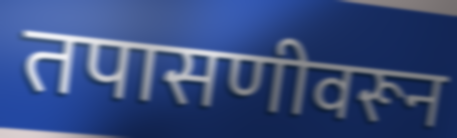
तपासणीवरून